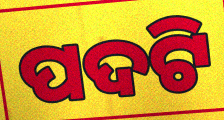
ପଦଟି